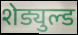
शेड्युल्ड